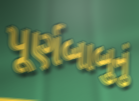
પૂર્ણબાબુનું